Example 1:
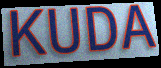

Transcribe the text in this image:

KUDA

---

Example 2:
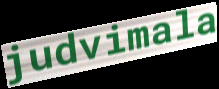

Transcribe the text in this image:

judvimala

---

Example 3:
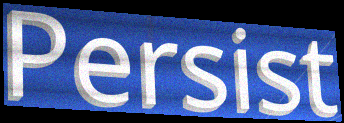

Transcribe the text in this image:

Persist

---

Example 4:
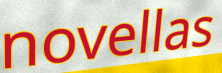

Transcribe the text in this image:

novellas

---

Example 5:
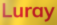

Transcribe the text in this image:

Luray